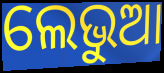
ଲେଭୁଆ